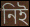
নিই